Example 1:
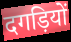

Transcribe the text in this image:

दगड़ियों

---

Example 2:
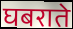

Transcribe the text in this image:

घबराते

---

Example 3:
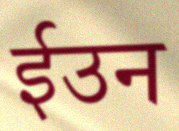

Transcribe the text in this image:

ईउन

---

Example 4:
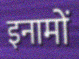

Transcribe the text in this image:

इनामों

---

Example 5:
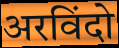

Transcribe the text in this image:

अरविंदो